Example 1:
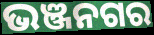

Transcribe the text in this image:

ଭଞ୍ଜନଗର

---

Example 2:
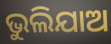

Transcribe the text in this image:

ଭୁଲିଯାଅ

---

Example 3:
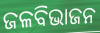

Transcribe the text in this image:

ଜଳବିଭାଜନ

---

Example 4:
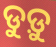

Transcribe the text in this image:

ଡୁଡ଼ୁ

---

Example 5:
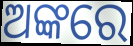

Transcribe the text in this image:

ଅଙ୍କରେ